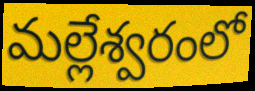
మల్లేశ్వరంలో